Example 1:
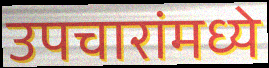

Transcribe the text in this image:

उपचारांमध्ये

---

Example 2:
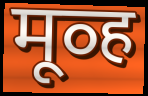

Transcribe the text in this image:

मूव्ह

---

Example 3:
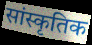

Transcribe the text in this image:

सांस्‍कृतिक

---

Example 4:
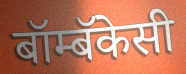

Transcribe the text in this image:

बॉम्बॅकेसी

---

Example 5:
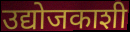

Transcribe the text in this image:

उद्योजकाशी